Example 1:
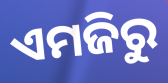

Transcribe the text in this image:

ଏମଜିରୁ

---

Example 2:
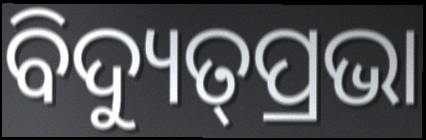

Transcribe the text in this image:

ବିଦ୍ୟୁତ୍‌ପ୍ରଭା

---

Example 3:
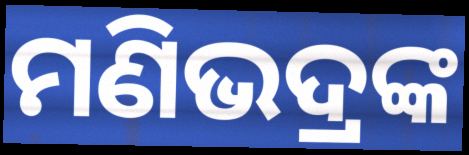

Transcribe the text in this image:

ମଣିଭଦ୍ରଙ୍କ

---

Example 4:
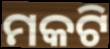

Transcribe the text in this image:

ମକଟି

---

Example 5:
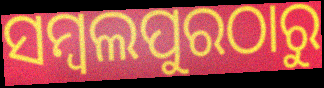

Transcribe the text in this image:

ସମ୍ବଲପୁରଠାରୁ